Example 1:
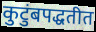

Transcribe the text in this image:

कुटुंबपद्धतीत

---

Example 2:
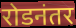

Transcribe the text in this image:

रोडनंतर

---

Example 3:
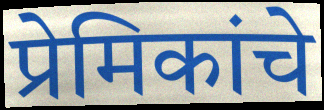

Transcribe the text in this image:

प्रेमिकांचे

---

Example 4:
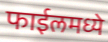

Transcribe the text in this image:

फाईलमध्ये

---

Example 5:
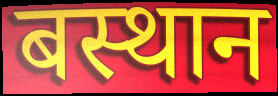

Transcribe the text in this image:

बस्थान